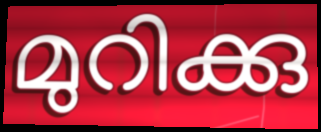
മുറിക്കു